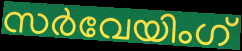
സർവേയിംഗ്